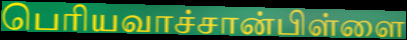
பெரியவாச்சான்பிள்ளை